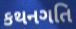
કથનગતિ